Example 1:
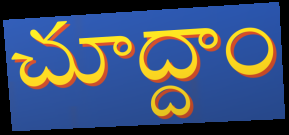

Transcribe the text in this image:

చూద్దాం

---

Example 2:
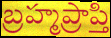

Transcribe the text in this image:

బ్రహ్మప్రాప్తి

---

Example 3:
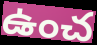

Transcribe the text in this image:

ఉంచ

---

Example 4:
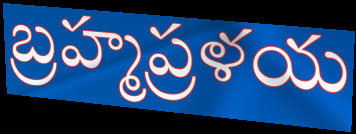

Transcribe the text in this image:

బ్రహ్మప్రళయ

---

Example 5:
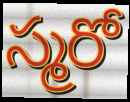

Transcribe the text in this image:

స్మరో